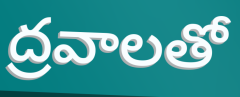
ద్రవాలతో